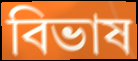
বিভাষ